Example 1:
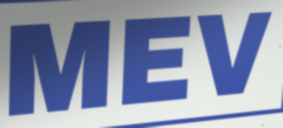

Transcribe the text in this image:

MEV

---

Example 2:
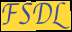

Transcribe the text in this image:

FSDL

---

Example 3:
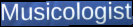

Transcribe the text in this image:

Musicologist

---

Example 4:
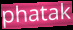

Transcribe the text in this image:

phatak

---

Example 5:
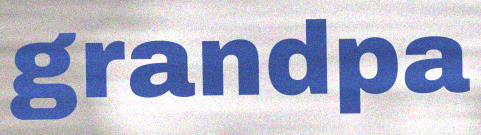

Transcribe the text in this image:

grandpa